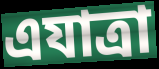
এযাত্রা